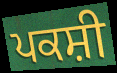
ਪਕਸ਼ੀ